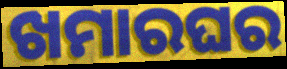
ଖମାରଘର